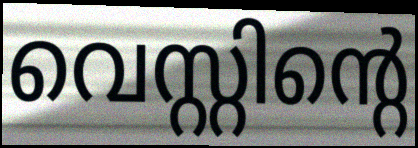
വെസ്റ്റിന്റെ